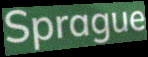
Sprague